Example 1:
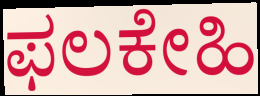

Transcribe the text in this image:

ಫಲಕೇಹಿ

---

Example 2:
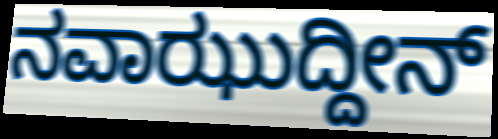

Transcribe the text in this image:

ನವಾಝುದ್ದೀನ್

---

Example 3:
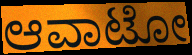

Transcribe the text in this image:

ಆವಾಟೋ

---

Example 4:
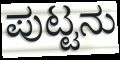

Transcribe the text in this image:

ಪುಟ್ಟನು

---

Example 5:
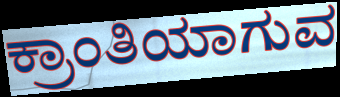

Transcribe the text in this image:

ಕ್ರಾಂತಿಯಾಗುವ